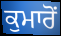
ਕੁਮਾਰੋਂ